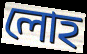
লোহ